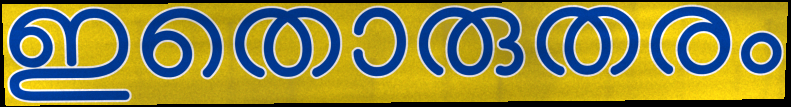
ഇതൊരുതരം